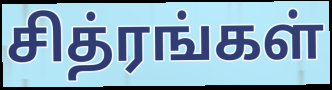
சித்ரங்கள்